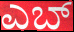
ಎಬ್